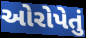
ઓરોપેતું